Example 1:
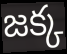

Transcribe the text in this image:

జక్క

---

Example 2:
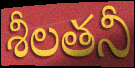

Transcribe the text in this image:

శీలతనీ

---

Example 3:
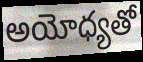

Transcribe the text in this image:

అయోధ్యతో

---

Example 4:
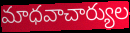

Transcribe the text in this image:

మాధవాచార్యుల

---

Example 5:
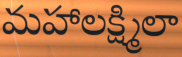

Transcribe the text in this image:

మహాలక్ష్మిలా